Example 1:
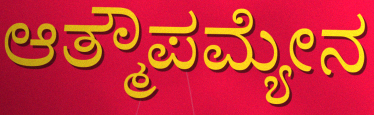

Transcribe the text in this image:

ಆತ್ಮೌಪಮ್ಯೇನ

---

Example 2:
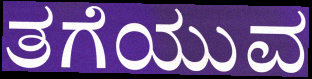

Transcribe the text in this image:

ತಗೆಯುವ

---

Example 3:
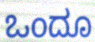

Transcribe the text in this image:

ಒಂದೂ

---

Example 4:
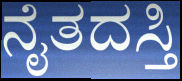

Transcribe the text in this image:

ನೈತದಸ್ತಿ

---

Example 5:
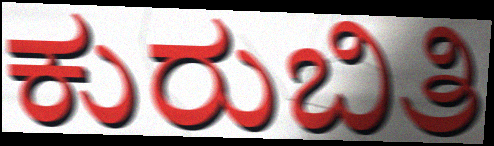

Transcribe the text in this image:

ಕುರುಬಿತಿ